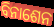
ବିନାଶେନ